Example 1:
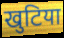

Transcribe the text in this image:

खुटिया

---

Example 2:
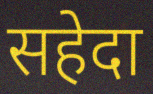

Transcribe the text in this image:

सहेदा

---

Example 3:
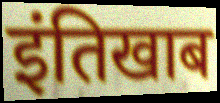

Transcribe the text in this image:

इंतिखाब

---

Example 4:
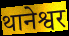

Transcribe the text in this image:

थानेश्वर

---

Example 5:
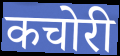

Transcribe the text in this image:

कचोरी